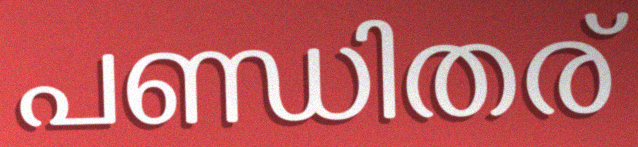
പണ്ഡിതര്